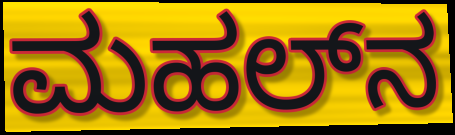
ಮಹಲ್‌ನ